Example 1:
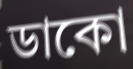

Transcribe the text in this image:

ডাকো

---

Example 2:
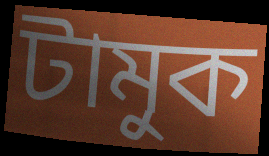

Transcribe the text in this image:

টামুক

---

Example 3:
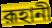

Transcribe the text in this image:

রূহানী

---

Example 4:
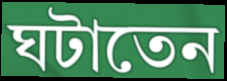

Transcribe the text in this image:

ঘটাতেন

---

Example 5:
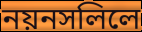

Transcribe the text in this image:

নয়নসলিলে